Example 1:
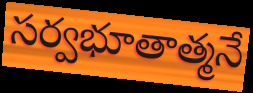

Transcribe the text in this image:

సర్వభూతాత్మనే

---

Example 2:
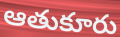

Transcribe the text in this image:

ఆతుకూరు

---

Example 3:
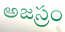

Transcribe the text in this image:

అజస్రం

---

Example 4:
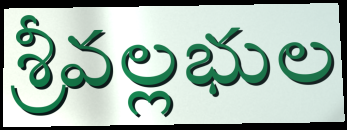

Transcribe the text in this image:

శ్రీవల్లభుల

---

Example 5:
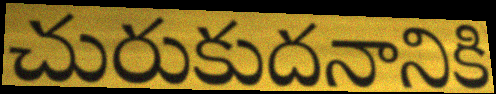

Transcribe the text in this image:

చురుకుదనానికి